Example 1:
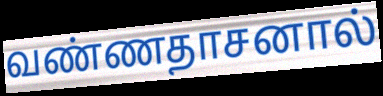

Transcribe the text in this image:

வண்ணதாசனால்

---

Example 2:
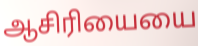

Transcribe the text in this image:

ஆசிரியையை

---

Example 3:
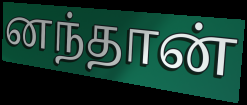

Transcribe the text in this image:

னந்தான்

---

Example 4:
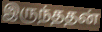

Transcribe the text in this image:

இருந்ததன்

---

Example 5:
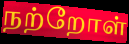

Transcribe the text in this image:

நற்றோள்